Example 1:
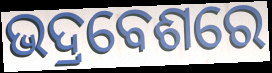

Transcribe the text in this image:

ଭଦ୍ରବେଶରେ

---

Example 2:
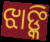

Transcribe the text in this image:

ଝାଙ୍କି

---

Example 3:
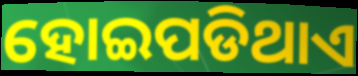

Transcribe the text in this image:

ହୋଇପଡିଥାଏ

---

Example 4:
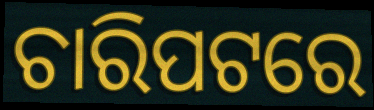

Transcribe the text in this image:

ଚାରିପଟରେ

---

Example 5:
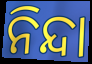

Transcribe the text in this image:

ନିନ୍ଦା